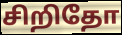
சிறிதோ